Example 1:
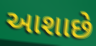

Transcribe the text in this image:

આશાછે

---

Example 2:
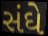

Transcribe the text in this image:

સંઘે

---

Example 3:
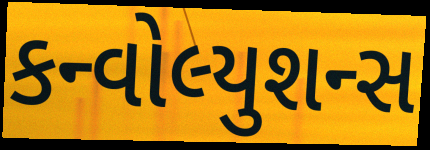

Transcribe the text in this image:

કન્વોલ્યુશન્સ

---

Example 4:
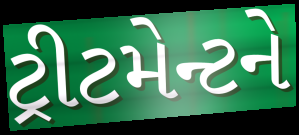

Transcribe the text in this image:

ટ્રીટમેન્ટને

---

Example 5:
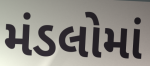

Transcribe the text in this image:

મંડલોમાં